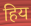
हिय